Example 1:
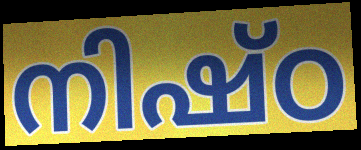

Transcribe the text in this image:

നിഷ്ഠ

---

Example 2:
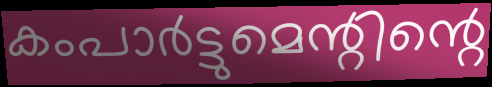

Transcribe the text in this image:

കംപാർട്ടുമെന്റിന്റെ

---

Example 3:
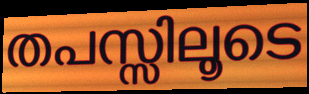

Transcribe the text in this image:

തപസ്സിലൂടെ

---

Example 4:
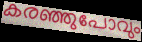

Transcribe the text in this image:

കരഞ്ഞുപോവും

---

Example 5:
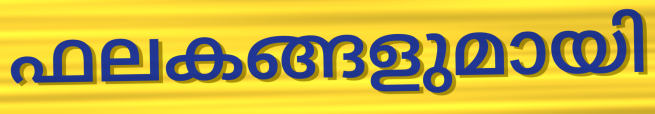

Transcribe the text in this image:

ഫലകങ്ങളുമായി